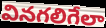
వినగలిగేలా